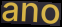
ano